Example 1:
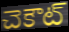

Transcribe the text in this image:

చెకౌట్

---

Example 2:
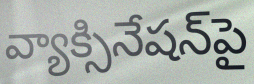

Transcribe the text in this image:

వ్యాక్సినేషన్‌పై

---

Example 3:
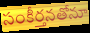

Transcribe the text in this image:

సంకీర్తనతోనూ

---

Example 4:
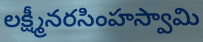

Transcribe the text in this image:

లక్ష్మీనరసింహస్వామి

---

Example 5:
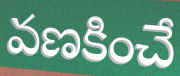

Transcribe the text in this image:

వణకించే